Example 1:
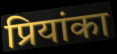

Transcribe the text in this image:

प्रियांका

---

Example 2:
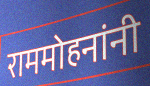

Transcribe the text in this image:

राममोहनांनी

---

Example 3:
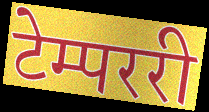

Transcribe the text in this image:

टेम्पररी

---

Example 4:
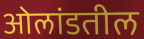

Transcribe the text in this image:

ओलांडतील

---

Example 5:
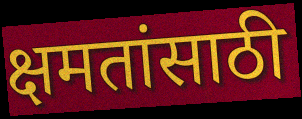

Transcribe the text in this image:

क्षमतांसाठी